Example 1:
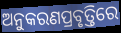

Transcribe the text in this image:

ଅନୁକରଣପ୍ରବୃତ୍ତିରେ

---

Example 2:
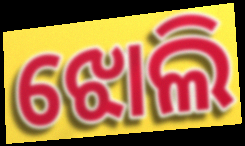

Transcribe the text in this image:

ଝୋଲି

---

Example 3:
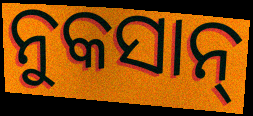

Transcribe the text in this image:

ନୁକସାନ୍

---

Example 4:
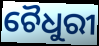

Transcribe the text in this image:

ଚୈଧୁରୀ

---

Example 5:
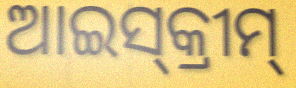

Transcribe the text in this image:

ଆଇସ୍‌କ୍ରୀମ୍